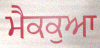
ਮੈਕਕੁਆ